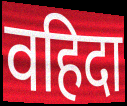
वहिदा